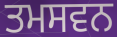
ਤਮਸਵਨ